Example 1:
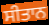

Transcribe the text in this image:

ਸੀਤਾਨ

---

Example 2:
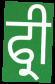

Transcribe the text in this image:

ਫ੍ਰੀ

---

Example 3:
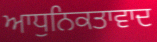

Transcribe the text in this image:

ਆਧੁਨਿਕਤਾਵਾਦ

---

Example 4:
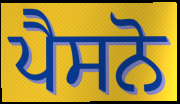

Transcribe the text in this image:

ਪੈਸਨੋ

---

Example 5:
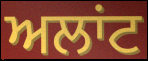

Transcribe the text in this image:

ਅਲਾਂਟ